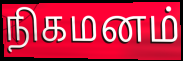
நிகமனம்